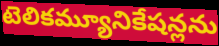
టెలికమ్యూనికేషన్లను